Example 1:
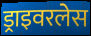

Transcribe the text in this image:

ड्राइवरलेस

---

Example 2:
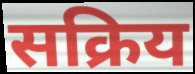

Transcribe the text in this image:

सक्रिय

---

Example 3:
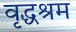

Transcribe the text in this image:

वृद्धश्रम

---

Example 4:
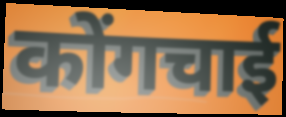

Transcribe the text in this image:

कोंगचाई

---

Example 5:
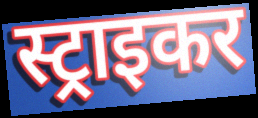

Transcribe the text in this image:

स्ट्राइकर